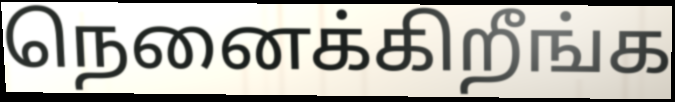
நெனைக்கிறீங்க